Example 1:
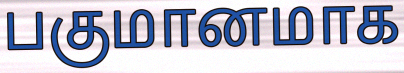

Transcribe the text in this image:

பகுமானமாக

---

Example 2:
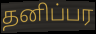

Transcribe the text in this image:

தனிப்பர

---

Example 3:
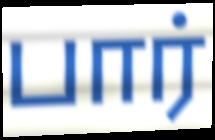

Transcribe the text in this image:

பார்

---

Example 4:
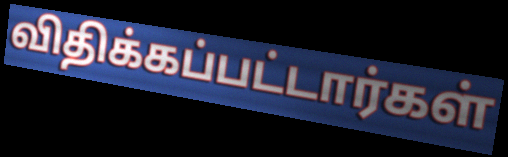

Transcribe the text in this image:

விதிக்கப்பட்டார்கள்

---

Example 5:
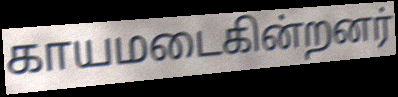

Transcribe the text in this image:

காயமடைகின்றனர்